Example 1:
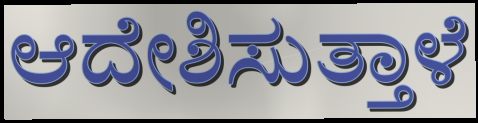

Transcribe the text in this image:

ಆದೇಶಿಸುತ್ತಾಳೆ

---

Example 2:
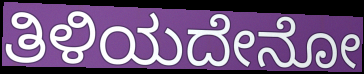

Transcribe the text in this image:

ತಿಳಿಯದೇನೋ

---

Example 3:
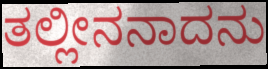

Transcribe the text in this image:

ತಲ್ಲೀನನಾದನು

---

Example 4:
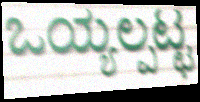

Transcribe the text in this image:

ಒಯ್ಯಲ್ಪಟ್ಟ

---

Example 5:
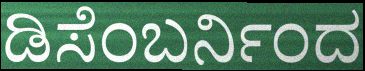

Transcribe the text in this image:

ಡಿಸೆಂಬರ್ನಿಂದ